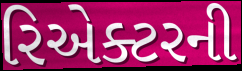
રિએક્ટરની